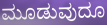
ಮೂಡುವುದೂ